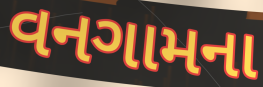
વનગામના